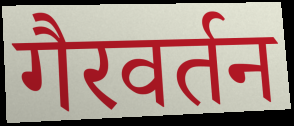
गैरवर्तन